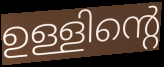
ഉള്ളിന്റെ